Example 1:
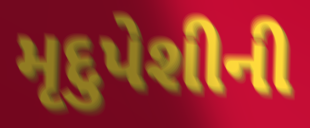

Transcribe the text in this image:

મૃદુપેશીની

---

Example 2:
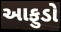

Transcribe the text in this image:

આફુડો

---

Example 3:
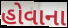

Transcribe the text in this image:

હોવાના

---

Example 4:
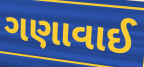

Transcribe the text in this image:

ગણાવાઈ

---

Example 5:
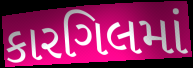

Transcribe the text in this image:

કારગિલમાં